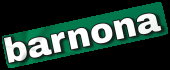
barnona